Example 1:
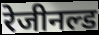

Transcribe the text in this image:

रेजीनल्ड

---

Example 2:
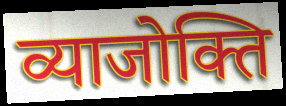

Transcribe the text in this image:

व्याजोक्ति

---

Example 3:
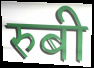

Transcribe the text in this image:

रुबी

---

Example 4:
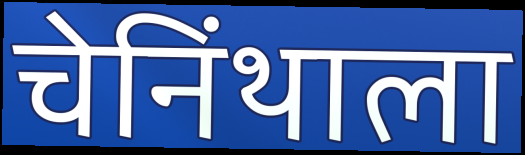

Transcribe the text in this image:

चेनिंथाला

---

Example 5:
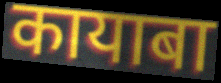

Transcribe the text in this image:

कायाबा